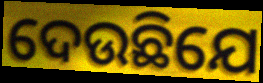
ଦେଉଛିଯେ